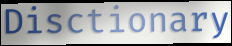
Disctionary